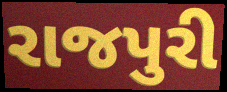
રાજપુરી